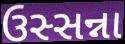
ઉસ્સન્ના